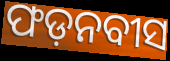
ଫଡ଼ନବୀସ